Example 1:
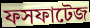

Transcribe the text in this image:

ফসফাটেজ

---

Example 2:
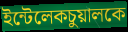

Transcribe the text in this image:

ইন্টেলেকচুয়ালকে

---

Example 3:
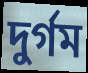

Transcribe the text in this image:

দুর্গম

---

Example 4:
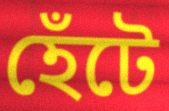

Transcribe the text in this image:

হেঁটে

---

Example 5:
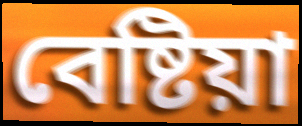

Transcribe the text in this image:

বেষ্টিয়া